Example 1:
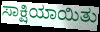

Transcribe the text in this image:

ಸಾಕ್ಷಿಯಾಯಿತು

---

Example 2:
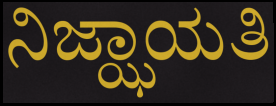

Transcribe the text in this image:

ನಿಜ್ಝಾಯತಿ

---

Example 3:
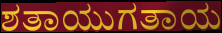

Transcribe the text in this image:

ಶತಾಯುಗತಾಯ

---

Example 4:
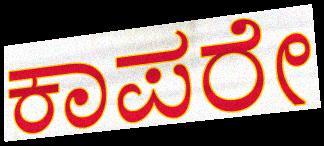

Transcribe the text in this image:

ಕಾಪರೇ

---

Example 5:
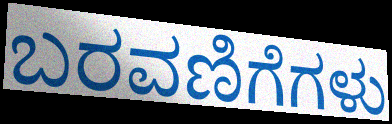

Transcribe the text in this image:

ಬರವಣಿಗೆಗಳು